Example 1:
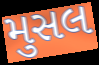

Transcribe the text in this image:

મુસલ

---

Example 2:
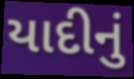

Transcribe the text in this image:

યાદીનું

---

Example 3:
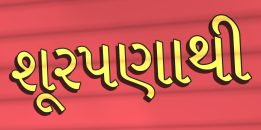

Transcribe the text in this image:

શૂરપણાથી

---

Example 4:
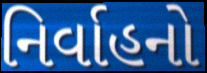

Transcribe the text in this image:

નિર્વાહનો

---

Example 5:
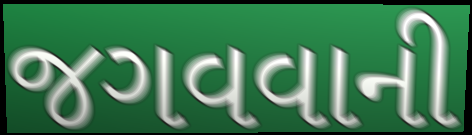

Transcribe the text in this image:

જગવવાની